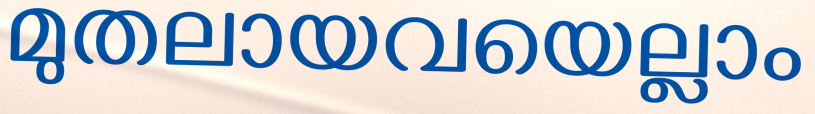
മുതലായവയെല്ലാം